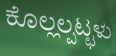
ಕೊಲ್ಲಲ್ಪಟ್ಟಳು